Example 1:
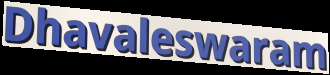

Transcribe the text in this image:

Dhavaleswaram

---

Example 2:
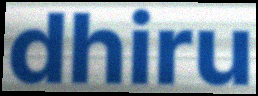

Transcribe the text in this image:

dhiru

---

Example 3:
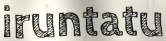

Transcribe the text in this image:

iruntatu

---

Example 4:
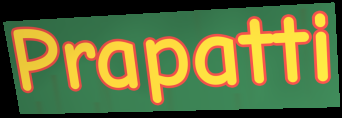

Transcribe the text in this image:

Prapatti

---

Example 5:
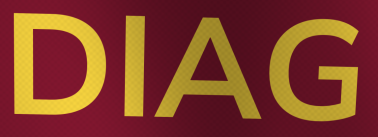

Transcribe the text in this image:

DIAG